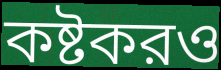
কষ্টকরও